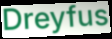
Dreyfus